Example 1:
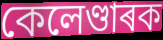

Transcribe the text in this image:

কেলেণ্ডাৰক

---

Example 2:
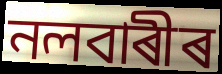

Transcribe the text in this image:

নলবাৰীৰ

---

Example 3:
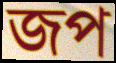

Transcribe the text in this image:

জপ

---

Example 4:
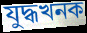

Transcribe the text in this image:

যুদ্ধখনক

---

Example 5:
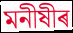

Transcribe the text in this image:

মনীষীৰ